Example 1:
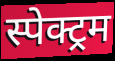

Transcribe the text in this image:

स्पेक्ट्रम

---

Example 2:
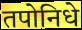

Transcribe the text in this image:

तपोनिधे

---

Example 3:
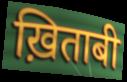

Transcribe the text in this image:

ख़िताबी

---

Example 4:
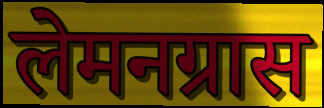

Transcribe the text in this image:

लेमनग्रास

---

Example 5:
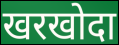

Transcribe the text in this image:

खरखोदा